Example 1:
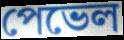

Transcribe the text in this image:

পেভেল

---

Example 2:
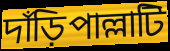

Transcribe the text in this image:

দাঁড়িপাল্লাটি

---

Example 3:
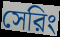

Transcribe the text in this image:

সেরিং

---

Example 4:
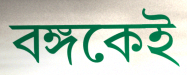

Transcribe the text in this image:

বঙ্গকেই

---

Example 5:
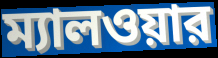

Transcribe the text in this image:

ম্যালওয়ার